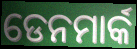
ଡେନମାର୍କ